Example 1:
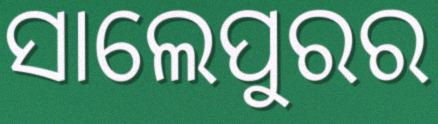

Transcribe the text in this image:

ସାଲେପୁରର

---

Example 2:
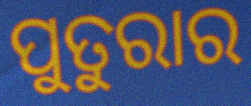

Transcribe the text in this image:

ପୁତୁରାର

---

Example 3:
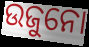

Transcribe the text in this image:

ଉଜୁନୋ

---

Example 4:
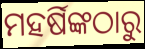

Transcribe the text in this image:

ମହର୍ଷିଙ୍କଠାରୁ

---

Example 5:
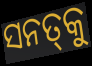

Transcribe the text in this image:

ସନତ୍‍କୁ